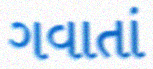
ગવાતાં